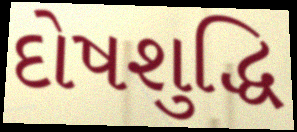
દોષશુદ્ધિ